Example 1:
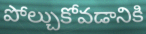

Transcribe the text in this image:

పోల్చుకోవడానికి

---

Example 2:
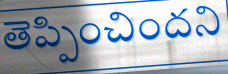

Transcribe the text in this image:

తెప్పించిందని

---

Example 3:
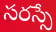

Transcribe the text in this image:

సరస్సే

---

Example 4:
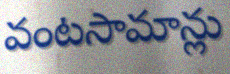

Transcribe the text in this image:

వంటసామాన్లు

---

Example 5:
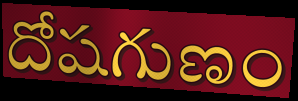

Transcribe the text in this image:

దోషగుణం